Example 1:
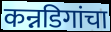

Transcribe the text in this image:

कन्नडिगांचा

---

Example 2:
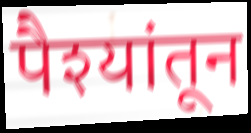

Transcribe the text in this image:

पैश्यांतून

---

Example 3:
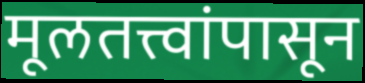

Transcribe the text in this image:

मूलतत्त्वांपासून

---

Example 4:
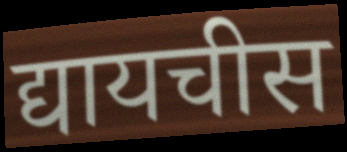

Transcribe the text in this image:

द्यायचीस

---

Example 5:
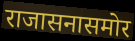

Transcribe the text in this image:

राजासनासमोर